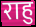
राहु